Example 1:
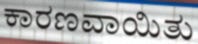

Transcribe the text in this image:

ಕಾರಣವಾಯಿತು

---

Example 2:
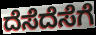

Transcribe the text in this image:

ದೆಸೆದೆಸೆಗೆ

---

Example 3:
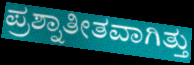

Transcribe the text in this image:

ಪ್ರಶ್ನಾತೀತವಾಗಿತ್ತು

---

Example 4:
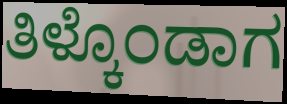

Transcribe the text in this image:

ತಿಳ್ಕೊಂಡಾಗ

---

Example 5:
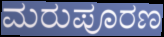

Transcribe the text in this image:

ಮರುಪೂರಣ